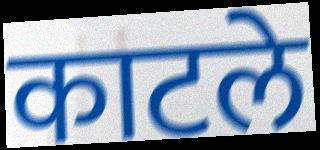
काटले